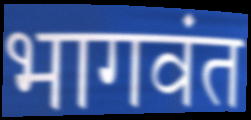
भागवंत